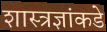
शास्त्रज्ञांकडे